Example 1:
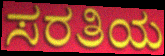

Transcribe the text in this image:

ಸರತಿಯ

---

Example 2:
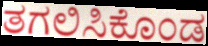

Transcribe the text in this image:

ತಗಲಿಸಿಕೊಂಡ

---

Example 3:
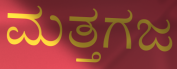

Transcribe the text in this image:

ಮತ್ತಗಜ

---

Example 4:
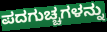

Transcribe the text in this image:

ಪದಗುಚ್ಚಗಳನ್ನು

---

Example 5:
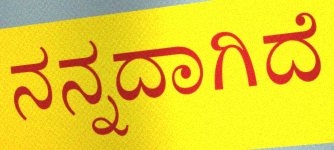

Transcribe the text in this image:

ನನ್ನದಾಗಿದೆ